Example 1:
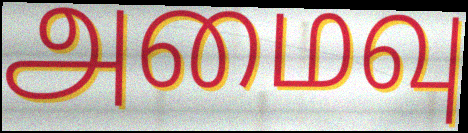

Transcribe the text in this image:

அமைவு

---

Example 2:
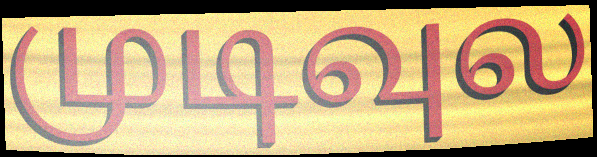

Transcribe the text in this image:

முடிவுல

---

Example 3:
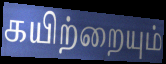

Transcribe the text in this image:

கயிற்றையும்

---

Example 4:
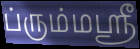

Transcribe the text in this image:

ப்ரும்மஸ்ரீ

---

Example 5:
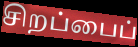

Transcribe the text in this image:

சிறப்பைப்